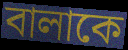
বালাকে